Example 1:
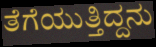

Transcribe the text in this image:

ತೆಗೆಯುತ್ತಿದ್ದನು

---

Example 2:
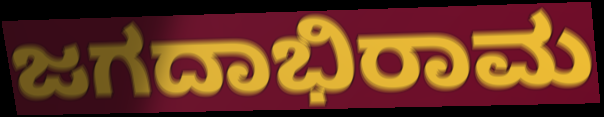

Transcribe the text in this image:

ಜಗದಾಭಿರಾಮ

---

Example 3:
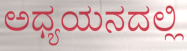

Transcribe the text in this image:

ಅಧ್ಯಯನದಲ್ಲಿ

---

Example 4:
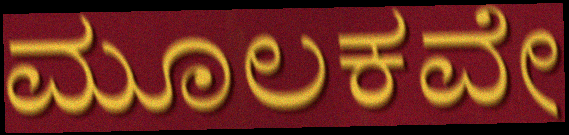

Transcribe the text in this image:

ಮೂಲಕವೇ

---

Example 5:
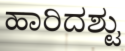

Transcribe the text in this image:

ಹಾರಿದಶ್ಟು